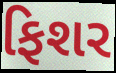
ફિશર